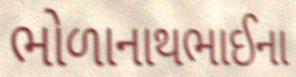
ભોળાનાથભાઈના